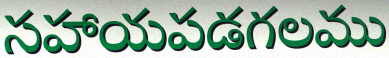
సహాయపడగలము